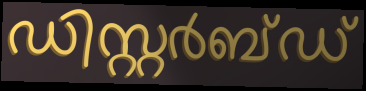
ഡിസ്റ്റർബ്ഡ്